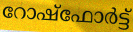
റോഷ്ഫോർട്ട്